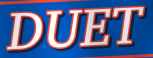
DUET